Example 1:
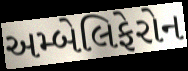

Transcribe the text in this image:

અમ્બેલિફેરોન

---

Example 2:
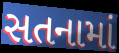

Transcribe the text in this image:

સતનામાં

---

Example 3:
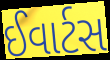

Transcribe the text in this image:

ઈવાર્ટસ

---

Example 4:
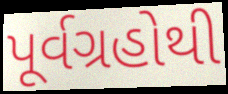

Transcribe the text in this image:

પૂર્વગ્રહોથી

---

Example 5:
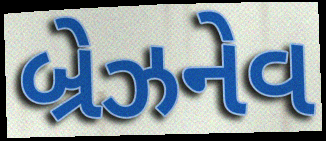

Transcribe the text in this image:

બ્રેઝનેવ